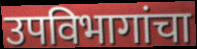
उपविभागांचा